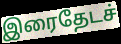
இரைதேடச்